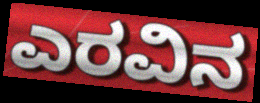
ಎರವಿನ